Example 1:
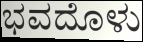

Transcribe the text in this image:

ಭವದೊಳು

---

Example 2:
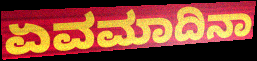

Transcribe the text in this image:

ಏವಮಾದಿನಾ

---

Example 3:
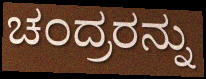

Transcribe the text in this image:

ಚಂದ್ರರನ್ನು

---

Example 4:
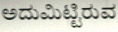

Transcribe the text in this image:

ಅದುಮಿಟ್ಟಿರುವ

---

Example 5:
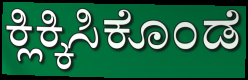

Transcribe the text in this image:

ಕ್ಲಿಕ್ಕಿಸಿಕೊಂಡೆ